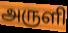
அருளி